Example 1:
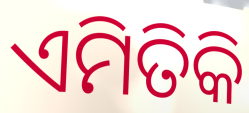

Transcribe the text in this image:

ଏମିତିକି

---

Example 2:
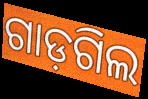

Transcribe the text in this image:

ଗାଡ଼ଗିଲ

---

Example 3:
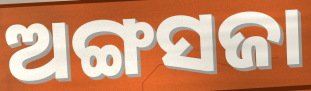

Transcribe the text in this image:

ଅଙ୍ଗସଜା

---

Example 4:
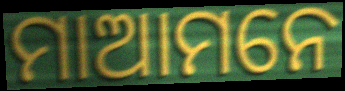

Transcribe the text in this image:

ମାଆମନେ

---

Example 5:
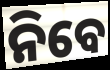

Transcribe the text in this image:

ନିବେ